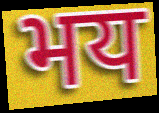
भय